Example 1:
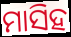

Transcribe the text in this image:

ମାସିହ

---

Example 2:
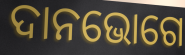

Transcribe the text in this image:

ଦାନଭୋଗେ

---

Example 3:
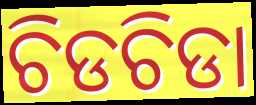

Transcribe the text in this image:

ଚିଡଚିଡା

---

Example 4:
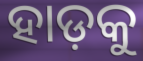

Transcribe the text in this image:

ହାଡ଼କୁ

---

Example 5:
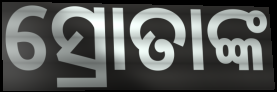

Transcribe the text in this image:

ସ୍ରୋତାଙ୍କ